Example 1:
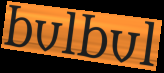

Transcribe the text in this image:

bulbul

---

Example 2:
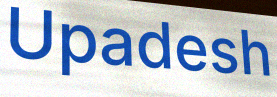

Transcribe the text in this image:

Upadesh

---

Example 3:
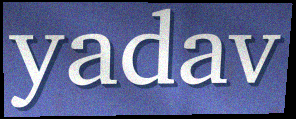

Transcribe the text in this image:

yadav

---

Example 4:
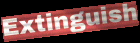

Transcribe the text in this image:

Extinguish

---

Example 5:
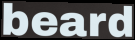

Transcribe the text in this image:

beard